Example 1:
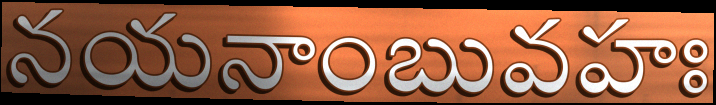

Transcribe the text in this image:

నయనాంబువహః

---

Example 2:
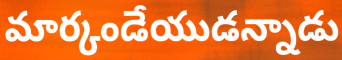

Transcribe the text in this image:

మార్కండేయుడన్నాడు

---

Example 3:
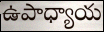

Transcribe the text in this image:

ఉపాధ్యాయ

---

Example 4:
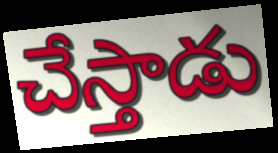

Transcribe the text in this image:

చేస్తాడు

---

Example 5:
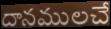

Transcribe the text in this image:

దానములచే